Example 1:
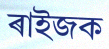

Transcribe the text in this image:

ৰাইজক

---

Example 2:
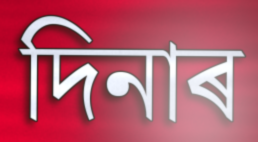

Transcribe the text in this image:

দিনাৰ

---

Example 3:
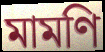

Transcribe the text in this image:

মামণি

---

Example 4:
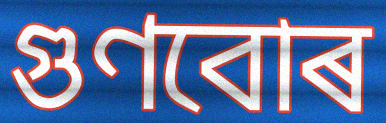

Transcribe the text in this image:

গুণবোৰ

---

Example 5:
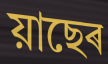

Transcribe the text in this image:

য়াছেৰ